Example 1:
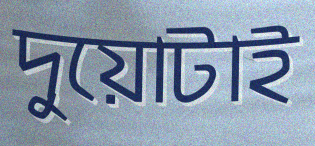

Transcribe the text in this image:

দুয়োটাই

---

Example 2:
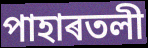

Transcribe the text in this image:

পাহাৰতলী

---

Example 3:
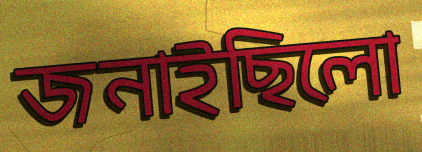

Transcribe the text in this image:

জনাইছিলো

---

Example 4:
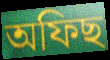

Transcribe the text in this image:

অফিছ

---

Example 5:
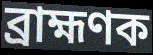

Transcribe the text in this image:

ব্ৰাহ্মণক